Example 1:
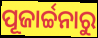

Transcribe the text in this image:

ପୂଜାର୍ଚ୍ଚନାରୁ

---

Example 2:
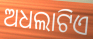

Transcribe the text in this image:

ଅଧଲାଟିଏ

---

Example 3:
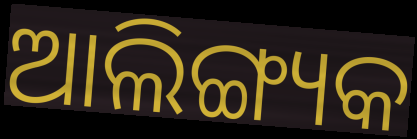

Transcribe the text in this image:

ଆଲିଙ୍ଗ୍ୟକ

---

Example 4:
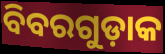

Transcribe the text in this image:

ବିବରଗୁଡ଼ାକ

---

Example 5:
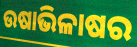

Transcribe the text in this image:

ଉଷାଭିଳାଷର